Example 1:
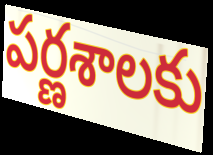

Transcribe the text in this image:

పర్ణశాలకు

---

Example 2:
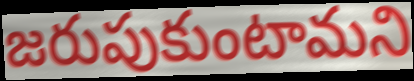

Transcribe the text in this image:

జరుపుకుంటామని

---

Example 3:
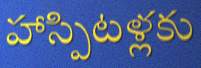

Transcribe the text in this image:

హాస్పిటళ్లకు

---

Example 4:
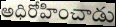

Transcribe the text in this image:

అధిరోహించాడు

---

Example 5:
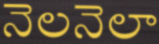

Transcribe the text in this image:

నెలనెలా